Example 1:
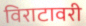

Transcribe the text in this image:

विराटावरी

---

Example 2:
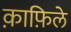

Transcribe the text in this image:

क़ाफ़िले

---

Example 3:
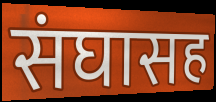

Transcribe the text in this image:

संघासह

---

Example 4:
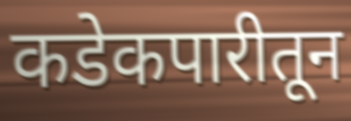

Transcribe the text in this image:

कडेकपारीतून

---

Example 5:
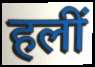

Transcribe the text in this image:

हलीं